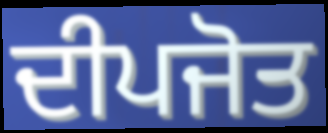
ਦੀਪਜੋਤ